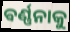
ଵର୍ଣ୍ଣନାକୁ